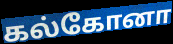
கல்கோனா